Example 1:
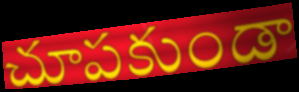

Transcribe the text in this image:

చూపకుండా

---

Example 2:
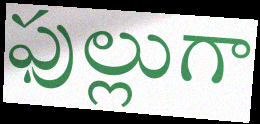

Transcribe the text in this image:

ఫుల్లుగా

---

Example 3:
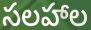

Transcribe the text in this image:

సలహాల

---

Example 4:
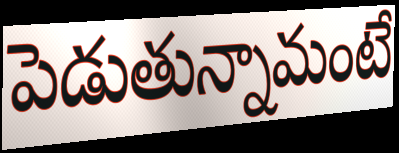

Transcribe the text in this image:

పెడుతున్నామంటే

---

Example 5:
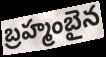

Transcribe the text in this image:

బ్రహ్మంబైన